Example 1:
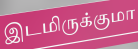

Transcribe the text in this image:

இடமிருக்குமா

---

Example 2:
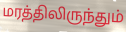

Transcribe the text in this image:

மரத்திலிருந்தும்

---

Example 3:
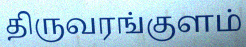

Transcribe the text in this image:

திருவரங்குளம்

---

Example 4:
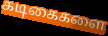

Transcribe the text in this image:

கடிகைகளை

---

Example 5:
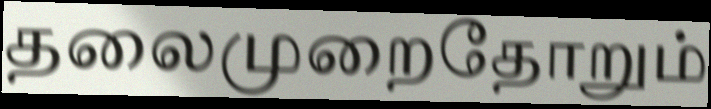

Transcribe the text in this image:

தலைமுறைதோறும்